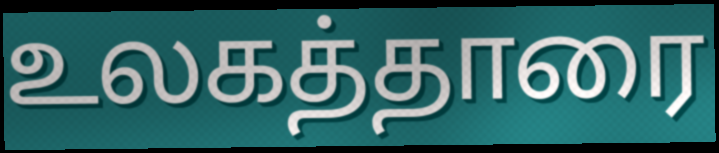
உலகத்தாரை